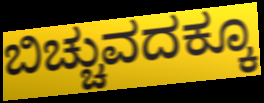
ಬಿಚ್ಚುವದಕ್ಕೂ